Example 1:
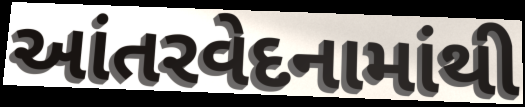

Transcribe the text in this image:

આંતરવેદનામાંથી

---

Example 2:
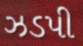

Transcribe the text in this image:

ઝડપી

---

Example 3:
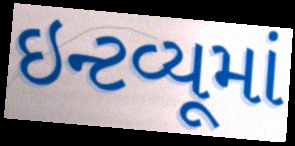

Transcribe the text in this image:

ઇન્ટવ્યૂમાં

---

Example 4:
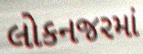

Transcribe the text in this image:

લોકનજરમાં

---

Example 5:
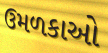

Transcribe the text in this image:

ઉમળકાઓ